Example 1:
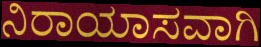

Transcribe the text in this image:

ನಿರಾಯಾಸವಾಗಿ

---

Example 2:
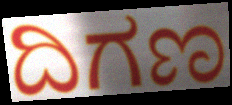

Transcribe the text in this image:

ದಿಗಣ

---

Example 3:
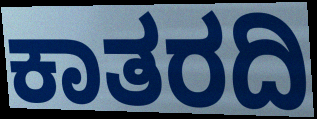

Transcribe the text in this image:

ಕಾತರದಿ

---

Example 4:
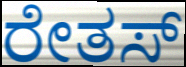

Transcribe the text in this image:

ರೇತಸ್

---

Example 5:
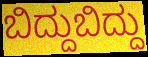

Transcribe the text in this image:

ಬಿದ್ದುಬಿದ್ದು